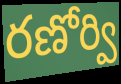
రణోర్వి